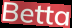
Betta